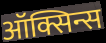
ऑक्सिन्स